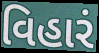
વિહારં